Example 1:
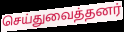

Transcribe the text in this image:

செய்துவைத்தனர்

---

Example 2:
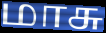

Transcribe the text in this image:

மாசு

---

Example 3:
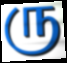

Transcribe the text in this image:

ரு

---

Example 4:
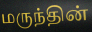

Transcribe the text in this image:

மருந்தின்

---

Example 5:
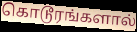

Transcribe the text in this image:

கொடூரங்களால்